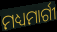
ମଧ୍ୟମାର୍ଗୀ